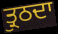
ਤ੍ਰੁਠਦਾ